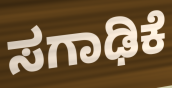
ಸಗಾಢಿಕೆ